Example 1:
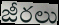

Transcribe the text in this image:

జీరలు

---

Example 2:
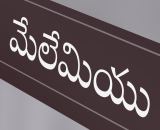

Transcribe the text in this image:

మేలేమియు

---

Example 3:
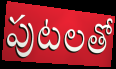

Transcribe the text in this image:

పుటలతో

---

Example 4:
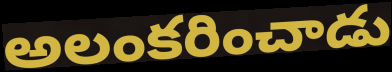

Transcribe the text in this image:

అలంకరించాడు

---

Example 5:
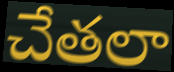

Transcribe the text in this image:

చేతలా